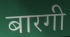
बारगी